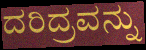
ದರಿದ್ರವನ್ನು